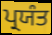
ਪ੍ਰਯੰਤ